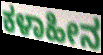
ಕಳಾಹೀನ